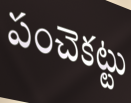
పంచెకట్టు